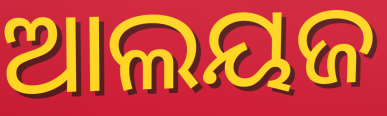
ଆଲୟଜ